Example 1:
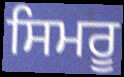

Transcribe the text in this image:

ਸਿਮਰੂ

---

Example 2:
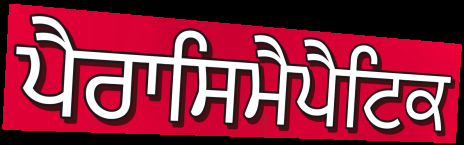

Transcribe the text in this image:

ਪੈਰਾਸਿਮੈਪੈਟਿਕ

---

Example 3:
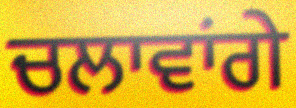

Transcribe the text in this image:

ਚਲਾਵਾਂਗੇ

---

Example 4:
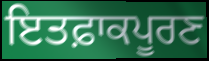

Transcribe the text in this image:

ਇਤਫ਼ਾਕਪੂਰਣ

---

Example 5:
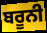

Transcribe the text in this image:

ਬਰੂਨੀ